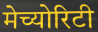
मेच्योरिटी